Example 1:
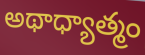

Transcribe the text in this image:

అథాధ్యాత్మం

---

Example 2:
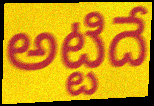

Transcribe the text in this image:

అట్టిదే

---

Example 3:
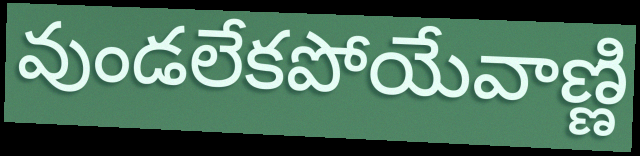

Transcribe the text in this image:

వుండలేకపోయేవాణ్ణి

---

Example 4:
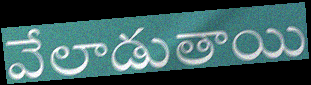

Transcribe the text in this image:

వేలాడుతాయి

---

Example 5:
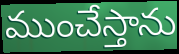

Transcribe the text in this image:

ముంచేస్తాను